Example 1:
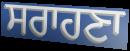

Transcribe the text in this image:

ਸਰਾਹਣਾ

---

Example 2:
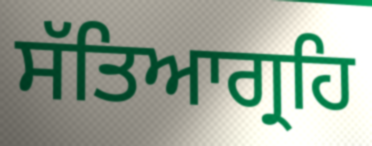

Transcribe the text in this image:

ਸੱਤਿਆਗ੍ਰਹਿ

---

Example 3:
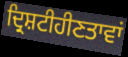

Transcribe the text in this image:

ਦ੍ਰਿਸ਼ਟੀਹੀਣਤਾਵਾਂ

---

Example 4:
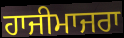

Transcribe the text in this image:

ਹਾਜੀਮਾਜਰਾ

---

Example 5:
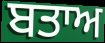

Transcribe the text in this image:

ਬਤਾਅ